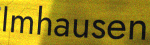
Imhausen